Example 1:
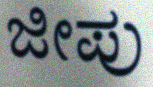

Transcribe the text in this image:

ಜೀಪು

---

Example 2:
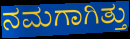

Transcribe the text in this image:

ನಮಗಾಗಿತ್ತು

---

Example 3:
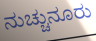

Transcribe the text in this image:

ನುಚ್ಚುನೂರು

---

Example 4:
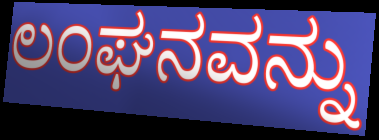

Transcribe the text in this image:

ಲಂಘನವನ್ನು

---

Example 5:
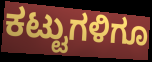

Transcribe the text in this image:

ಕಟ್ಟುಗಳಿಗೂ